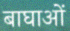
बाघाओं